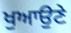
ਖੁਆਉਣੇ